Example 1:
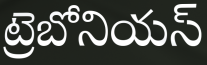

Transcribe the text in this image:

ట్రెబోనియస్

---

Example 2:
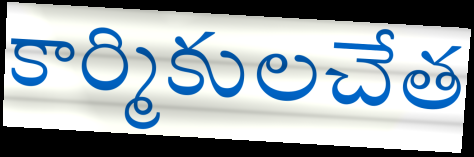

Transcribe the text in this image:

కార్మికులచేత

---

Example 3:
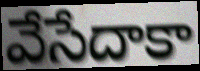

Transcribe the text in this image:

వేసేదాకా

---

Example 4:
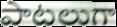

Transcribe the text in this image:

పాటలుగా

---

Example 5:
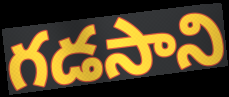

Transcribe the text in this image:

గడసాని